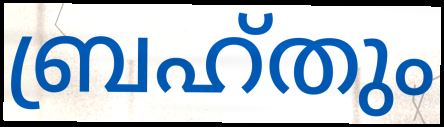
ബ്രഹ്തും